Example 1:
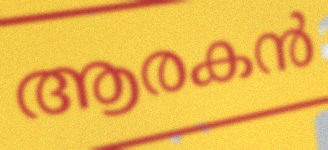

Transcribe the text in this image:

ആരകൻ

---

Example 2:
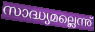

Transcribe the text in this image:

സാദ്ധ്യമല്ലെന്നു്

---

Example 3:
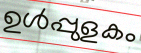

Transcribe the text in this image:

ഉൾപ്പുളകം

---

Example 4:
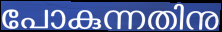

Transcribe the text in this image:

പോകുന്നതിനു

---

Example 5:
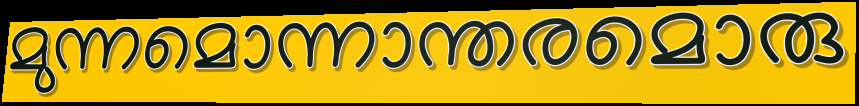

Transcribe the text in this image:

മുന്നമൊന്നാന്തരമൊരു